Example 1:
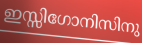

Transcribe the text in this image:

ഇസ്സിഗോനിസിനു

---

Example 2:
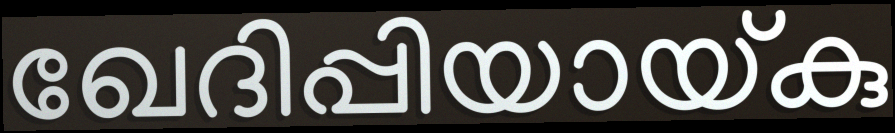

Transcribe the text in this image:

ഖേദിപ്പിയായ്കു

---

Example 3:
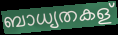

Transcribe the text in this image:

ബാധ്യതകള്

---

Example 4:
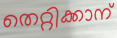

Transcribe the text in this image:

തെറ്റിക്കാന്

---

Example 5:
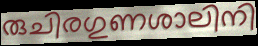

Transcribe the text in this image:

രുചിരഗുണശാലിനി